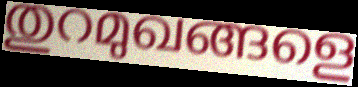
തുറമുഖങ്ങളെ